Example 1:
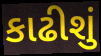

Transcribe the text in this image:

કાઢીશું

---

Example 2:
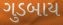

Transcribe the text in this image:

ગુડબાય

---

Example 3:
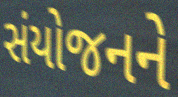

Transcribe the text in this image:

સંયોજનને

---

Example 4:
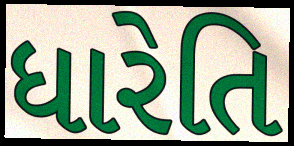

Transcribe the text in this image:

ધારેતિ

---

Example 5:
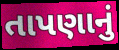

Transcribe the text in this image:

તાપણાનું